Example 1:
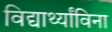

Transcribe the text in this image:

विद्यार्थ्यांविना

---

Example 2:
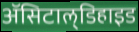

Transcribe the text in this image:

ॲसिटाल्डिहाइड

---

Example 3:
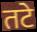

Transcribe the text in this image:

तटे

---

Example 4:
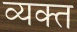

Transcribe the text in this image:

व्यक्‍त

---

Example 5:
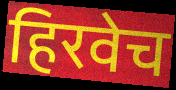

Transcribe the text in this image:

हिरवेच